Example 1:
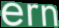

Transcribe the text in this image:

ern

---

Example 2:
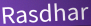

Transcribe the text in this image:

Rasdhar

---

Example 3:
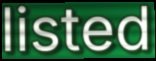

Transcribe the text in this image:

listed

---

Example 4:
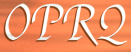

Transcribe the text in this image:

OPRQ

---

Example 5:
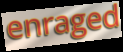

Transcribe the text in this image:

enraged